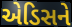
એડિસને